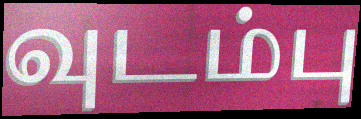
வுடம்பு